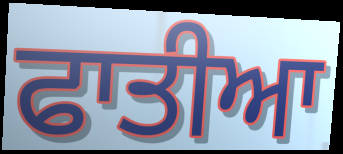
ਫਾਤੀਆ